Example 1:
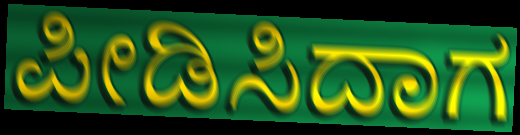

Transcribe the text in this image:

ಪೀಡಿಸಿದಾಗ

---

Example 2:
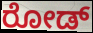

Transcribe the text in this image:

ರೋಡ್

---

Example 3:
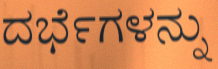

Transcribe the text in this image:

ದರ್ಭೆಗಳನ್ನು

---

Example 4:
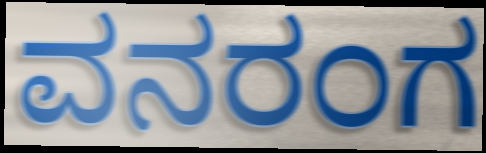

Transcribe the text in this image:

ವನರಂಗ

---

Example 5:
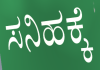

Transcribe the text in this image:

ಸನಿಹಕ್ಕೆ